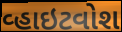
વ્હાઇટવોશ